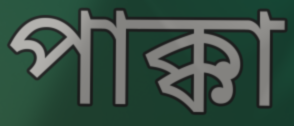
পাক্কা